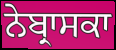
ਨੇਬ੍ਰਾਸਕਾ